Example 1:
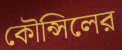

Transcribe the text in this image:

কৌন্সিলের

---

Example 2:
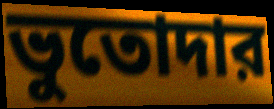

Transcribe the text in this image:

ভুতোদার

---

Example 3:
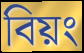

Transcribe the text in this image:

বিয়ং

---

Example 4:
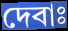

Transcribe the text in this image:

দেবাঃ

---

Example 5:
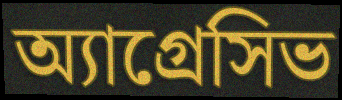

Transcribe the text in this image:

অ্যাগ্রেসিভ